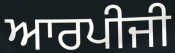
ਆਰਪੀਜੀ